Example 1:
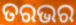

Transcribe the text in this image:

ତରଭର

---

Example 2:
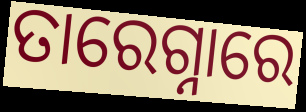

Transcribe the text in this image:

ତାରେଗ୍ନାରେ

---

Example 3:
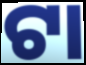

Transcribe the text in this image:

ଟା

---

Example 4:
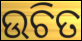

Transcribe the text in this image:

ଉଚିତ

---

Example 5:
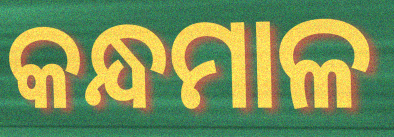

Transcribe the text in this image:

କନ୍ଧମାଳ